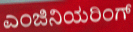
ಎಂಜಿನಿಯರಿಂಗ್